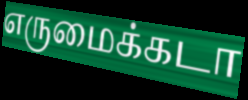
எருமைக்கடா